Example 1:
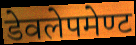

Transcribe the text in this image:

डेवलेपमेण्ट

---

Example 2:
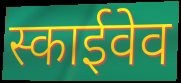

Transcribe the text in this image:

स्काईवेव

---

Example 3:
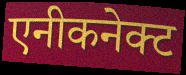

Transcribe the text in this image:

एनीकनेक्ट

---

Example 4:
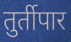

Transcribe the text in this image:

तुर्तीपार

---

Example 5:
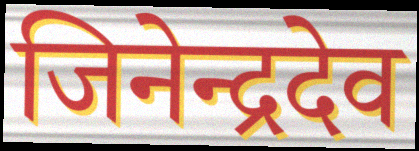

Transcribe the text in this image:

जिनेन्द्रदेव